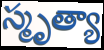
స్మృత్యా